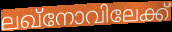
ലഖ്നോവിലേക്ക്